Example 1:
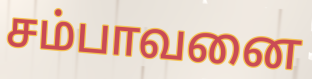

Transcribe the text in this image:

சம்பாவனை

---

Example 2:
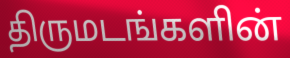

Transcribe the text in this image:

திருமடங்களின்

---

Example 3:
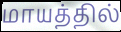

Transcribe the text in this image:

மாயத்தில்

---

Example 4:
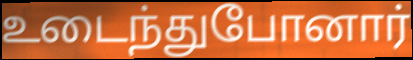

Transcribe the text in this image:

உடைந்துபோனார்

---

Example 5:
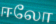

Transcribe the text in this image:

ஈலோ